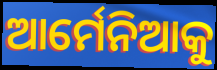
ଆର୍ମେନିଆକୁ